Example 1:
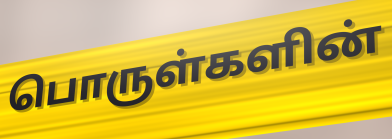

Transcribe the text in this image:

பொருள்களின்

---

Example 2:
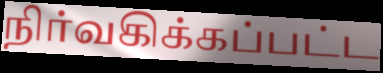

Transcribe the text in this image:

நிர்வகிக்கப்பட்ட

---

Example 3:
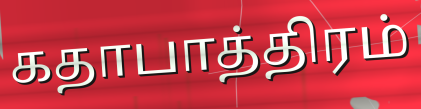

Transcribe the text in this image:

கதாபாத்திரம்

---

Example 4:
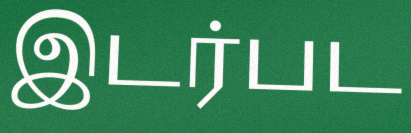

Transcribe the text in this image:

இடர்பட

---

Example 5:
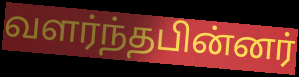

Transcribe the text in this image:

வளர்ந்தபின்னர்